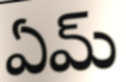
ఏమ్